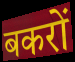
बकरों